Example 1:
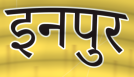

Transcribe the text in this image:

इनपुर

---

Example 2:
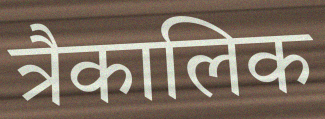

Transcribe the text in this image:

त्रैकालिक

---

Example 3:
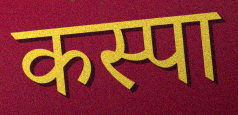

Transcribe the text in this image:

कस्पा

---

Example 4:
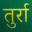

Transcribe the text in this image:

तुर्रा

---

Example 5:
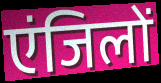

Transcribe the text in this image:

एंजिलों